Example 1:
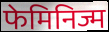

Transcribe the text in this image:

फेमिनिज्‍म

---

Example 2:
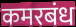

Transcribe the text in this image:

कमरबंध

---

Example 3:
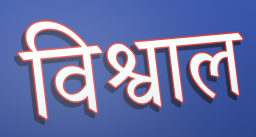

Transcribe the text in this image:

विश्वाल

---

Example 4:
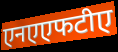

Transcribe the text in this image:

एनएएफटीए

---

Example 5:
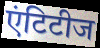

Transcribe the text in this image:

एंटिटीज